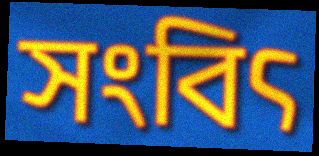
সংবিৎ